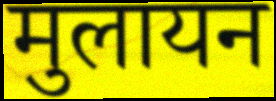
मुलायन